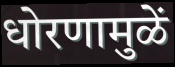
धोरणामुळें